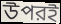
উপরই